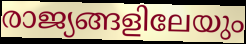
രാജ്യങ്ങളിലേയും